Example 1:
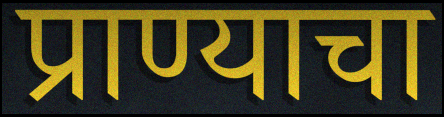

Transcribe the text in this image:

प्राण्याचा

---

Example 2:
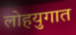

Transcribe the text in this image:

लोहयुगात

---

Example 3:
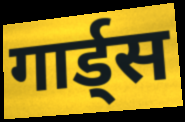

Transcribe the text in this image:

गार्ड्स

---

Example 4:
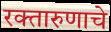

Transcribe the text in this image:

रक्तारुणाचे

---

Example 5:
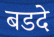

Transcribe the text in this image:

बडदे